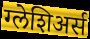
ग्लेशिअर्स